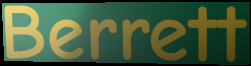
Berrett